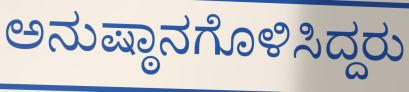
ಅನುಷ್ಠಾನಗೊಳಿಸಿದ್ದರು